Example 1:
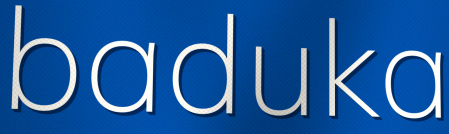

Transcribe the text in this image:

baduka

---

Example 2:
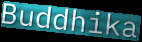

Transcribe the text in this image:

Buddhika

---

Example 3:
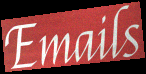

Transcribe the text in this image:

Emails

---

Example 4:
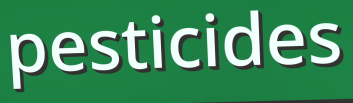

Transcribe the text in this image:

pesticides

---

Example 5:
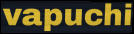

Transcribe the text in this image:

vapuchi